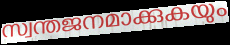
സ്വന്തജനമാക്കുകയും